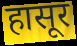
हासूर